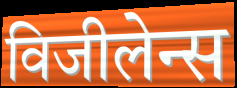
विजीलेन्स